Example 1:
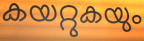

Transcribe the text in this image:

കയറ്റുകയും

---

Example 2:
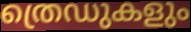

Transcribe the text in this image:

ത്രെഡുകളും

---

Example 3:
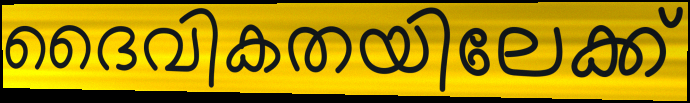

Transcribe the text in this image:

ദൈവികതയിലേക്ക്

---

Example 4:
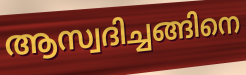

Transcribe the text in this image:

ആസ്വദിച്ചങ്ങിനെ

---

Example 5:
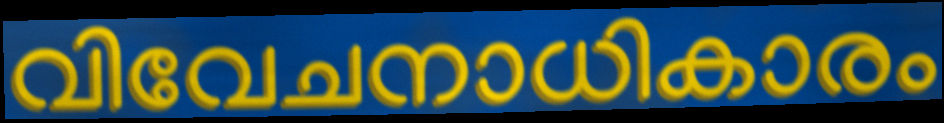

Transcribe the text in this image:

വിവേചനാധികാരം